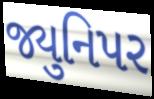
જ્યુનિપર